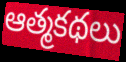
ఆత్మకథలు